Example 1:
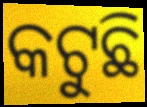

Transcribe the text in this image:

କଟୁଛି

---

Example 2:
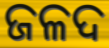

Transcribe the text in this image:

ଜଳଦ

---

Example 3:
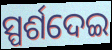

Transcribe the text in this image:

ସ୍ପର୍ଶଦେଇ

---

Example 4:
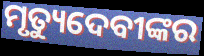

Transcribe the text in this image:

ମୃତ୍ୟୁଦେବୀଙ୍କର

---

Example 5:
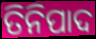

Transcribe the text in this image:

ତିନିପାଦ